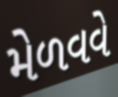
મેળવવે